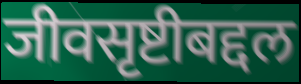
जीवसृष्टीबद्दल